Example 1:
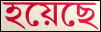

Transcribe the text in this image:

হয়েছে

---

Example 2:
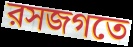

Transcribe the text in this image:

রসজগতে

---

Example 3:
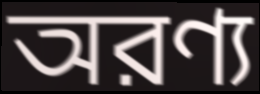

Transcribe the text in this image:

অরণ্য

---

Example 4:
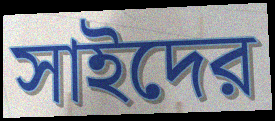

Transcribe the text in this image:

সাইদের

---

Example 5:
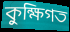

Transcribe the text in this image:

কুক্ষিগত